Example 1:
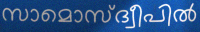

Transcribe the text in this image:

സാമൊസ്ദ്വീപിൽ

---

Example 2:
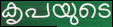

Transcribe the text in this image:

കൃപയുടെ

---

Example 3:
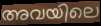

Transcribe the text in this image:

അവയിലെ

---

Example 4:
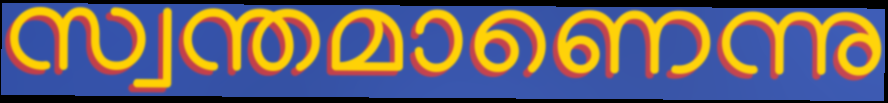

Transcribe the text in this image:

സ്വന്തമാണെന്നു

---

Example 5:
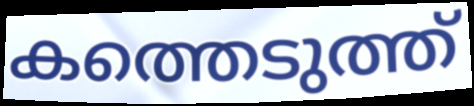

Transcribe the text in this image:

കത്തെടുത്ത്